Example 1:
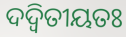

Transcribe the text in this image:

ଦଦ୍ୱିତୀୟତଃ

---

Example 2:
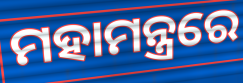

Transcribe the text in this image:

ମହାମନ୍ତ୍ରରେ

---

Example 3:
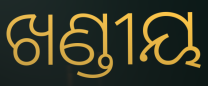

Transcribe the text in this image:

ଖଣ୍ଡୀୟ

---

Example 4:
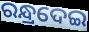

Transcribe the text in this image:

ରନ୍ଧ୍ରଦେଇ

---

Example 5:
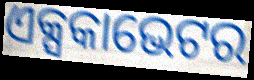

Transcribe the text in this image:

ଏକ୍ସକାଭେଟର